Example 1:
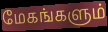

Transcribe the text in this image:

மேகங்களும்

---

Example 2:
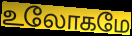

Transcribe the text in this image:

உலோகமே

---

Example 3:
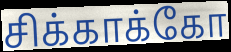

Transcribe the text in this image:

சிக்காக்கோ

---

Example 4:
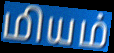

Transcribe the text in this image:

மியம்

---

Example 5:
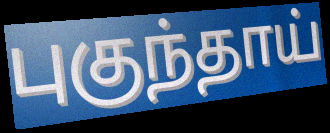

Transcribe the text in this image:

புகுந்தாய்